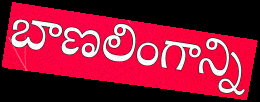
బాణలింగాన్ని